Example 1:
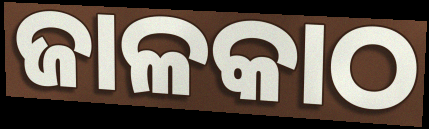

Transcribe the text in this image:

ଜାଳକାଠ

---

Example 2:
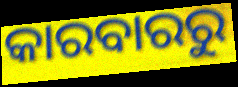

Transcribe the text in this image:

କାରବାରରୁ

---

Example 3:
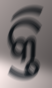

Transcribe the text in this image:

କ୍ତି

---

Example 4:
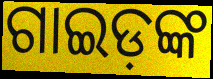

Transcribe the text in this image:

ଗାଇଡ଼ଙ୍କ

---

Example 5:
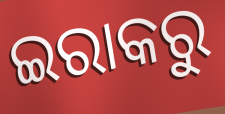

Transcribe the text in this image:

ଇରାକରୁ